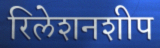
रिलेशनशीप